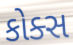
કોક્સ